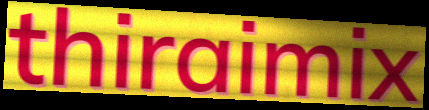
thiraimix